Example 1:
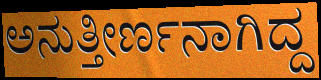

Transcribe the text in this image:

ಅನುತ್ತೀರ್ಣನಾಗಿದ್ದ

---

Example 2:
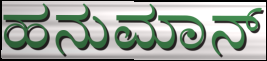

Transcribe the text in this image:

ಹನುಮಾನ್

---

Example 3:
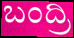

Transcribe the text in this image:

ಬಂದ್ರಿ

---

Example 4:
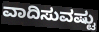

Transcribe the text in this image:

ವಾದಿಸುವಷ್ಟು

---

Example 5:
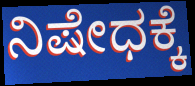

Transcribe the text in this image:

ನಿಷೇಧಕ್ಕೆ